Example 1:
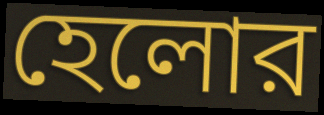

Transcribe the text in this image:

হেলোর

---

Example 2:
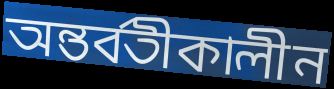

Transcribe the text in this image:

অন্তর্বতীকালীন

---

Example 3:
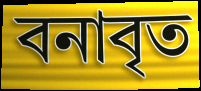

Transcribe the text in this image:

বনাবৃত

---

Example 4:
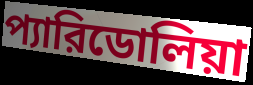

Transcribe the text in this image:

প্যারিডোলিয়া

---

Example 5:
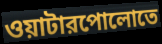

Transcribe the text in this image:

ওয়াটারপোলোতে